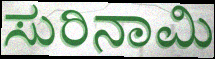
ಸುರಿನಾಮಿ